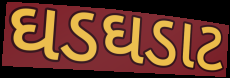
ઘડઘડાટ